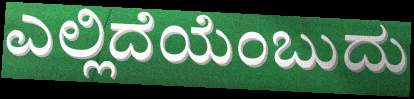
ಎಲ್ಲಿದೆಯೆಂಬುದು